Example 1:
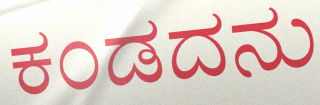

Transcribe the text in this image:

ಕಂಡದನು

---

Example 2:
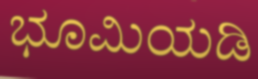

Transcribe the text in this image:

ಭೂಮಿಯಡಿ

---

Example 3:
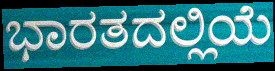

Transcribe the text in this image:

ಭಾರತದಲ್ಲಿಯೆ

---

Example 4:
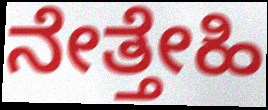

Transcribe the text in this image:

ನೇತ್ತೇಹಿ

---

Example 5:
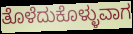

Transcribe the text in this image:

ತೊಳೆದುಕೊಳ್ಳುವಾಗ